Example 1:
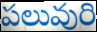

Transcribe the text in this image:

పలువురి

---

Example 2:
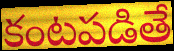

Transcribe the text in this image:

కంటపడితే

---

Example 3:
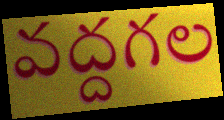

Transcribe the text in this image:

వద్దగల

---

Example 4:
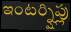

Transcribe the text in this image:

ఇంటర్న్షిప్లు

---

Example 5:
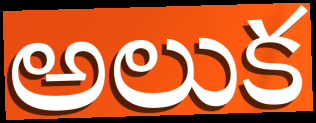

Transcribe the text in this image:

అలుక